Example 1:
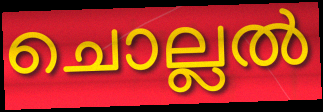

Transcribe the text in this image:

ചൊല്ലൽ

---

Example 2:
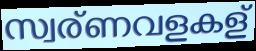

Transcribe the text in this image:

സ്വര്ണവളകള്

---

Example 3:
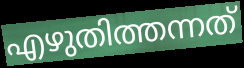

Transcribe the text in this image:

എഴുതിത്തന്നത്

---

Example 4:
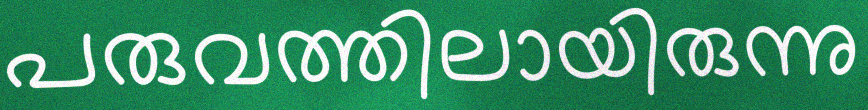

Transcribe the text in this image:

പരുവത്തിലായിരുന്നു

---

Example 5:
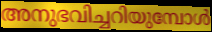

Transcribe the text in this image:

അനുഭവിച്ചറിയുമ്പോൾ